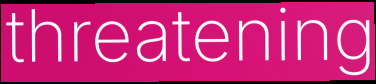
threatening